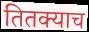
तितक्याच